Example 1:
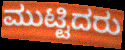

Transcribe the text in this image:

ಮುಟ್ಟಿದರು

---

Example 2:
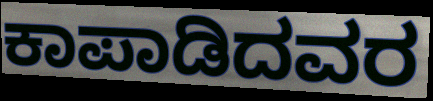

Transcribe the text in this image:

ಕಾಪಾಡಿದವರ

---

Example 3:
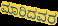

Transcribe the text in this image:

ಮಾರಿದವರ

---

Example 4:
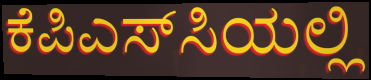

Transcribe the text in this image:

ಕೆಪಿಎಸ್‌ಸಿಯಲ್ಲಿ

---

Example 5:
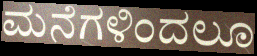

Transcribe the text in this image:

ಮನೆಗಳಿಂದಲೂ